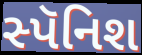
સ્પૅનિશ